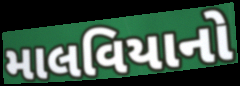
માલવિયાનો